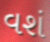
વશં